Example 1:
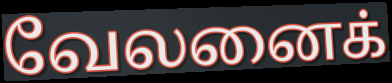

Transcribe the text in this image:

வேலனைக்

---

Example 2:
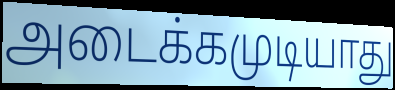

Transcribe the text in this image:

அடைக்கமுடியாது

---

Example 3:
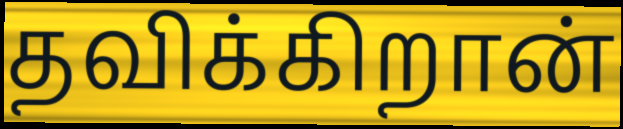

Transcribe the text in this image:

தவிக்கிறான்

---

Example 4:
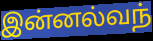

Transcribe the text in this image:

இன்னல்வந்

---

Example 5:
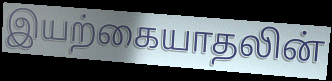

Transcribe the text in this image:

இயற்கையாதலின்